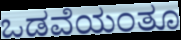
ಒಡವೆಯಂತೂ